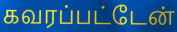
கவரப்பட்டேன்